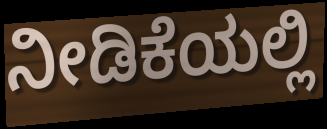
ನೀಡಿಕೆಯಲ್ಲಿ